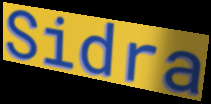
Sidra